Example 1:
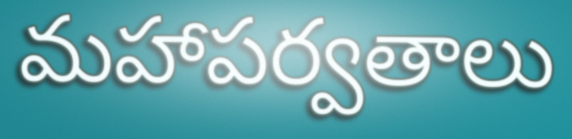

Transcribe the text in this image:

మహాపర్వతాలు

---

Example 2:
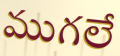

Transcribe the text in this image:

ముగలే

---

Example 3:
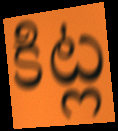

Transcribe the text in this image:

కిట్ల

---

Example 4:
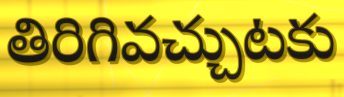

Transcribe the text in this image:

తిరిగివచ్చుటకు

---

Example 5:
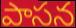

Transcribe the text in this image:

పాసన